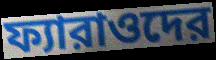
ফ্যারাওদের